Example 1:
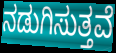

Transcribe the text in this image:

ನಡುಗಿಸುತ್ತವೆ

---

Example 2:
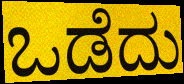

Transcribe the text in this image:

ಒಡೆದು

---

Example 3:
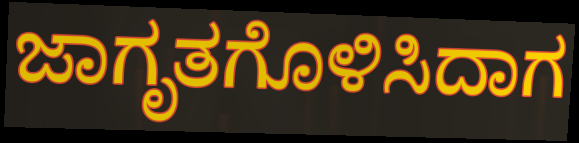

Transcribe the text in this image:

ಜಾಗೃತಗೊಳಿಸಿದಾಗ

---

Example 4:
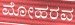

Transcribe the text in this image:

ಮೋಹರವ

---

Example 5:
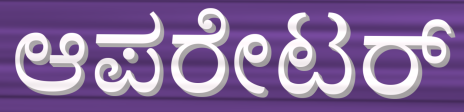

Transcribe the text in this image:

ಆಪರೇಟರ್